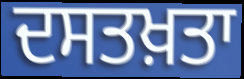
ਦਸਤਖ਼ਤਾ